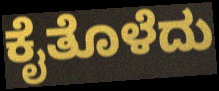
ಕೈತೊಳೆದು